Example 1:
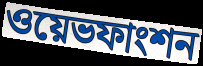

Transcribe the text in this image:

ওয়েভফাংশন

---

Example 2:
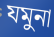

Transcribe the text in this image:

যমুনা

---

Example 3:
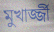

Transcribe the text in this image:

মুখার্জ্জী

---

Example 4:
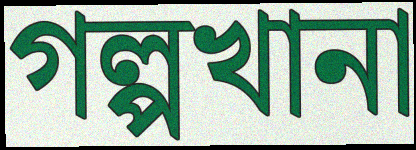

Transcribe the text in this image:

গল্পখানা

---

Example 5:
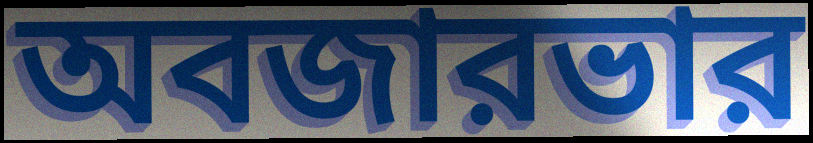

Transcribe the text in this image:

অবজারভার